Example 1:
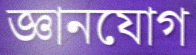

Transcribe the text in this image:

জ্ঞানযোগ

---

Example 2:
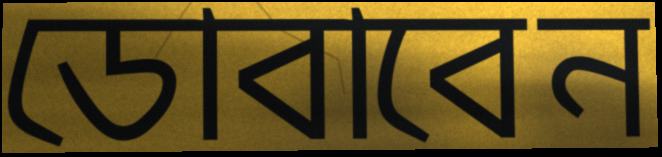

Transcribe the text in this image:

ডোবাবেন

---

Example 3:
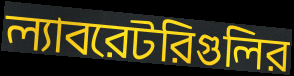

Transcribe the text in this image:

ল্যাবরেটরিগুলির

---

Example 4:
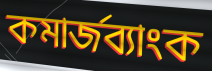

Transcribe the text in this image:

কমার্জব্যাংক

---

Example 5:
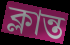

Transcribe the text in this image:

ক্লান্ত